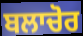
ਬਲਾਚੋਰ